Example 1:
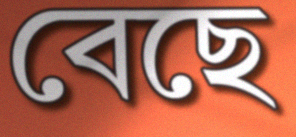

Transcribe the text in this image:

বেছে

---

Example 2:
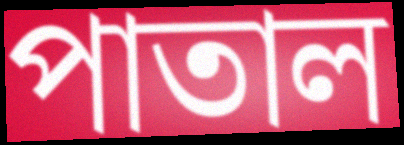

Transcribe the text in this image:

পাতাল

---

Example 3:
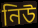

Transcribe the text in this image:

নিউ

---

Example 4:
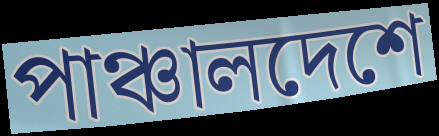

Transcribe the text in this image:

পাঞ্চালদেশে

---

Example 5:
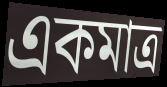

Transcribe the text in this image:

একমাত্র